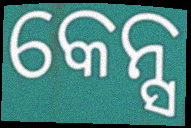
କେନ୍ସ